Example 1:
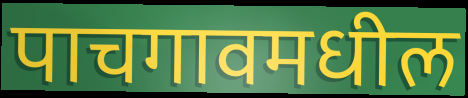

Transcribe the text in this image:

पाचगावमधील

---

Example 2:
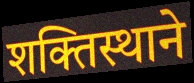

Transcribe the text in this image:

शक्तिस्थाने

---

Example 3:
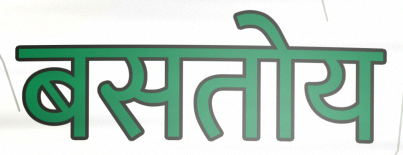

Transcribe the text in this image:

बसतोय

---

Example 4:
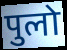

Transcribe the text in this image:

पुलो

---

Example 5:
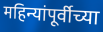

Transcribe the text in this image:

महिन्यांपूर्वीच्या